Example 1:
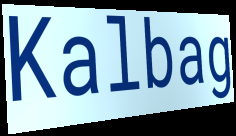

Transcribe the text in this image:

Kalbag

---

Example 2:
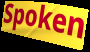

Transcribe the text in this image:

Spoken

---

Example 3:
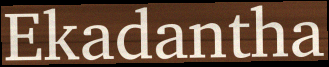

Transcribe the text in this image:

Ekadantha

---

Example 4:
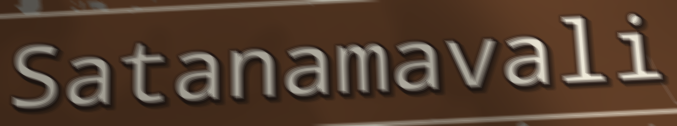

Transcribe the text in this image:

Satanamavali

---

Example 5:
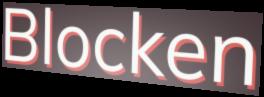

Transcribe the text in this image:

Blocken